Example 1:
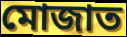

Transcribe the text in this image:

মোজাত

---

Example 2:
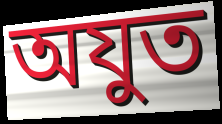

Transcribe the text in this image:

অযুত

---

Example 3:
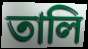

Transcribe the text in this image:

তালি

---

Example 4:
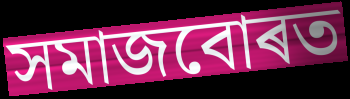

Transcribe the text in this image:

সমাজবোৰত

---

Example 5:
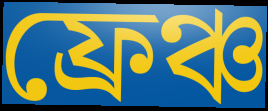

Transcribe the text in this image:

ফ্ৰেঞ্চ